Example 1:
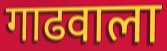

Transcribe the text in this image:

गाढवाला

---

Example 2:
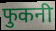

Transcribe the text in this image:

फुकनी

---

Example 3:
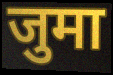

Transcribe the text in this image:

जुमा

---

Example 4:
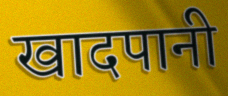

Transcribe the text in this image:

खादपानी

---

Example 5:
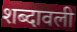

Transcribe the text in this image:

शब्दावली